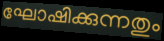
ഘോഷിക്കുന്നതും